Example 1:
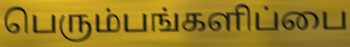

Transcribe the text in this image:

பெரும்பங்களிப்பை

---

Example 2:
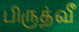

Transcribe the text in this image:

பிருத்வீ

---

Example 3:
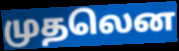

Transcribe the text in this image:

முதலென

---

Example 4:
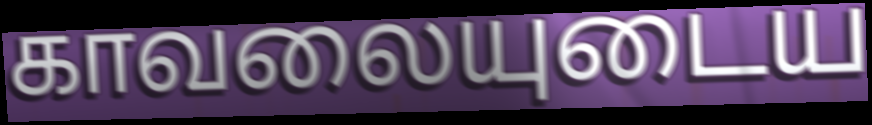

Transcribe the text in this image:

காவலையுடைய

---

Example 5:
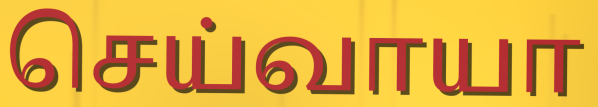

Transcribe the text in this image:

செய்வாயா